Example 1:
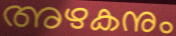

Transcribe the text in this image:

അഴകനും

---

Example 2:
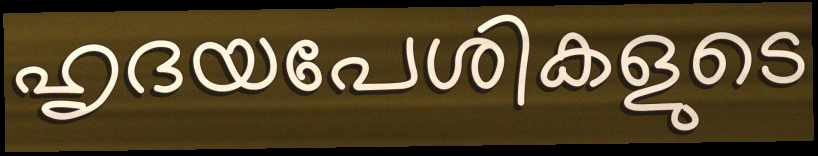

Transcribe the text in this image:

ഹൃദയപേശികളുടെ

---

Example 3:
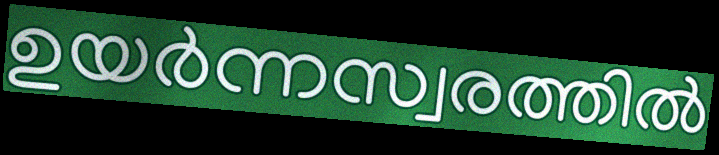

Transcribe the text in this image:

ഉയർന്നസ്വരത്തിൽ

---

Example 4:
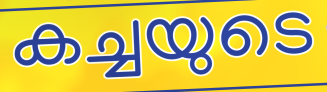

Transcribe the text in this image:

കച്ചയുടെ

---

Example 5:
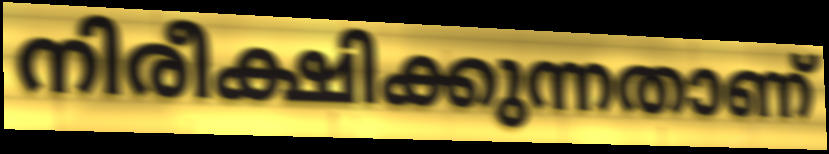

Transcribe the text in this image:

നിരീക്ഷിക്കുന്നതാണ്